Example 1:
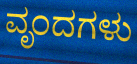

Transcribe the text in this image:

ವೃಂದಗಳು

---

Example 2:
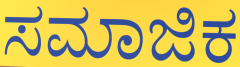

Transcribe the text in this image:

ಸಮಾಜಿಕ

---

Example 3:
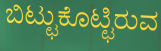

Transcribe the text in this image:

ಬಿಟ್ಟುಕೊಟ್ಟಿರುವ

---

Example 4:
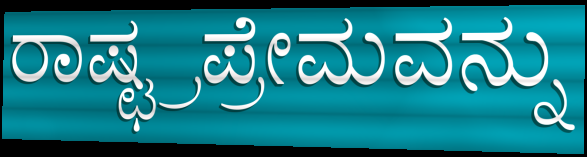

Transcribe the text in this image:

ರಾಷ್ಟ್ರಪ್ರೇಮವನ್ನು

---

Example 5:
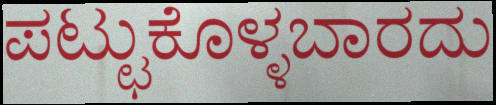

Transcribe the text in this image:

ಪಟ್ಟುಕೊಳ್ಳಬಾರದು